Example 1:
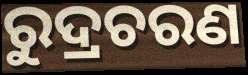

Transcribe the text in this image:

ରୁଦ୍ରଚରଣ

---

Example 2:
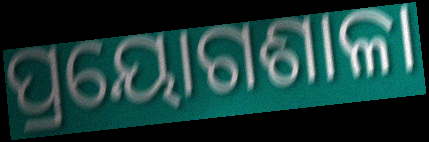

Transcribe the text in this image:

ପ୍ରୟୋଗଶାଳା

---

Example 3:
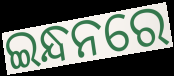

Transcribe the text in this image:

ଇନ୍ଧନରେ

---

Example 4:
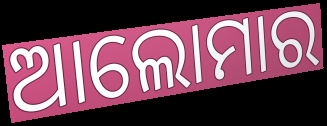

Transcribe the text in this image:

ଆଲୋମାର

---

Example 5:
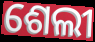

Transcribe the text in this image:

ଶେଲୀ